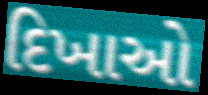
દિખાઓ